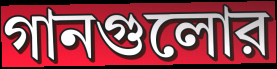
গানগুলোর